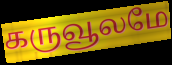
கருவூலமே